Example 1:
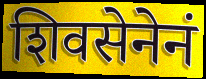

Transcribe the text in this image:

शिवसेनेनं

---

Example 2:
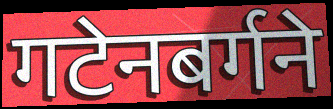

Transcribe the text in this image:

गटेनबर्गने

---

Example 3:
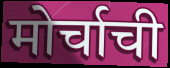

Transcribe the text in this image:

मोर्चाची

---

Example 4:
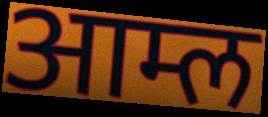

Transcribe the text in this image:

आम्‍ल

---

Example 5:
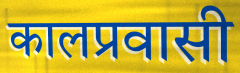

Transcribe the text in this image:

कालप्रवासी